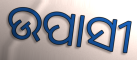
ଉପାସୀ